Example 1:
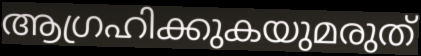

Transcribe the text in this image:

ആഗ്രഹിക്കുകയുമരുത്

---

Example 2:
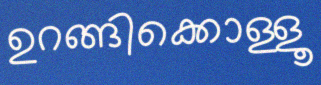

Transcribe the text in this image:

ഉറങ്ങിക്കൊള്ളൂ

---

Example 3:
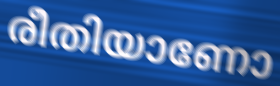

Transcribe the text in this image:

രീതിയാണോ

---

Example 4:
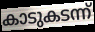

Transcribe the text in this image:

കാടുകടന്ന്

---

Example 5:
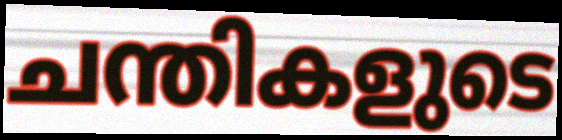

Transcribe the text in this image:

ചന്തികളുടെ